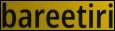
bareetiri